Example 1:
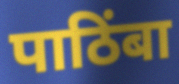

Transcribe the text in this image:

पाठिंबा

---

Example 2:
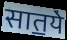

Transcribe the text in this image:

सा॒तये॑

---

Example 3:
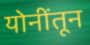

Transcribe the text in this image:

योनींतून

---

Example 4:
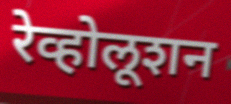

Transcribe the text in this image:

रेव्होलूशन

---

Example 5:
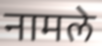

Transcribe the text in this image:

नामले